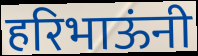
हरिभाऊंनी